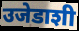
उजेडाशी